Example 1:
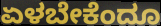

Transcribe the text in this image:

ಏಳಬೇಕೆಂದೂ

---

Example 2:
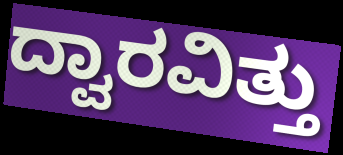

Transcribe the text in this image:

ದ್ವಾರವಿತ್ತು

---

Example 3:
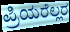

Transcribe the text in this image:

ಪ್ರಿಯರೆಲ್ಲರ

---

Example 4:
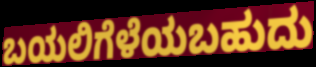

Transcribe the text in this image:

ಬಯಲಿಗೆಳೆಯಬಹುದು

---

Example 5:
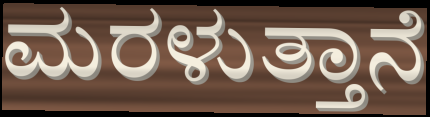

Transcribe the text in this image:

ಮರಳುತ್ತಾನೆ